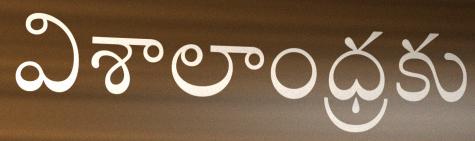
విశాలాంధ్రకు